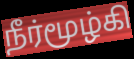
நீர்மூழ்கி